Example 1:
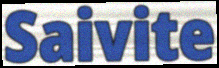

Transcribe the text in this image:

Saivite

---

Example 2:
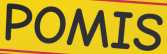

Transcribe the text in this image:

POMIS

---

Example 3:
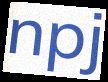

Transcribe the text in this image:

npj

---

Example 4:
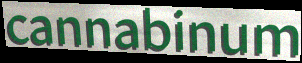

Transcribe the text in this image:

cannabinum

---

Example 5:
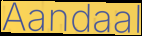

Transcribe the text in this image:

Aandaal